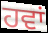
ਹਵਾਂ